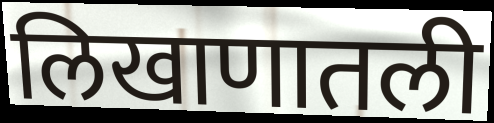
लिखाणातली